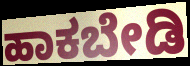
ಹಾಕಬೇಡಿ